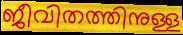
ജീവിതത്തിനുള്ള